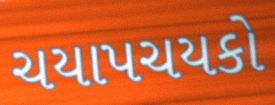
ચયાપચયકો